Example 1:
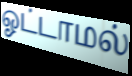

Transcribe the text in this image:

ஓட்டாமல்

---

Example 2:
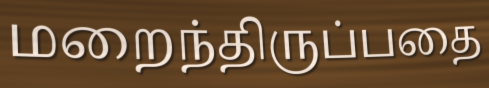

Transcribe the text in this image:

மறைந்திருப்பதை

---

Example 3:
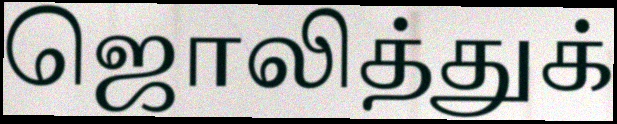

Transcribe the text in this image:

ஜொலித்துக்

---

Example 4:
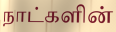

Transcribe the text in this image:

நாட்களின்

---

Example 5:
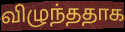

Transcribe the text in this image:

விழுந்ததாக